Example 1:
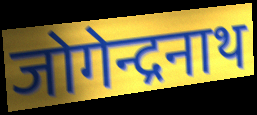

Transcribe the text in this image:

जोगेन्द्रनाथ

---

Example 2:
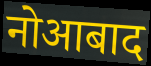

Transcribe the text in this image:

नोआबाद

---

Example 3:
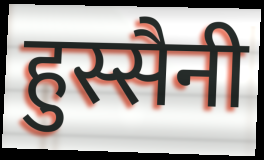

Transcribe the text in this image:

हुस्सैनी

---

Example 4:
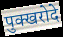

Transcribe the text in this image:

पुक्खरोदे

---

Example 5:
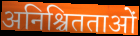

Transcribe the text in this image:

अनिश्चितताओं